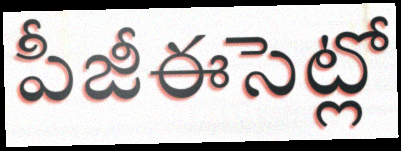
పీజీఈసెట్లో